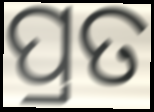
ପ୍ରତ